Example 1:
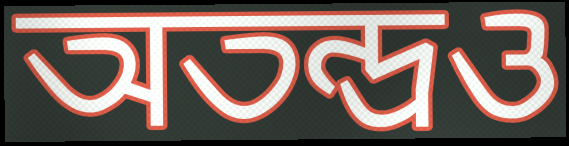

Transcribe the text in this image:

অতন্দ্রও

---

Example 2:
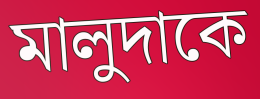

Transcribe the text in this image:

মালুদাকে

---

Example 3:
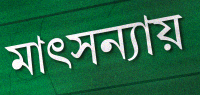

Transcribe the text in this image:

মাৎসন্যায়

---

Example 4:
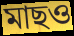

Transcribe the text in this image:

মাছও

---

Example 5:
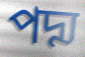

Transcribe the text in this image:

পদ্ম